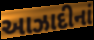
આઝાદીનાં